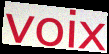
voix